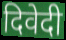
दिवेदी